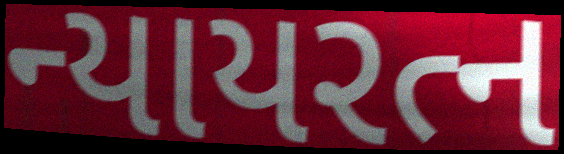
ન્યાયરત્ન